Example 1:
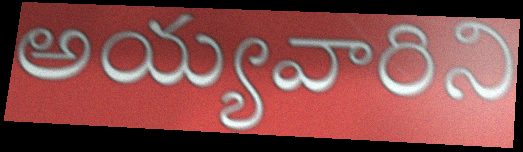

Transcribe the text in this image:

అయ్యవారిని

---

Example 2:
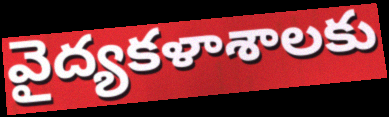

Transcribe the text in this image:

వైద్యకళాశాలకు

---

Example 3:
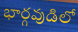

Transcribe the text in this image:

భార్గవుడిలో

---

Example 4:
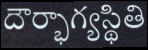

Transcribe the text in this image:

దౌర్భాగ్యస్థితి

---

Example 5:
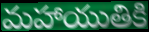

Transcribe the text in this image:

మహాయుతికి